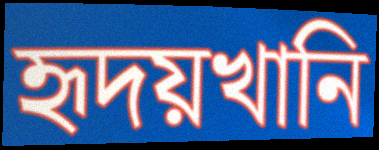
হৃদয়খানি